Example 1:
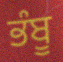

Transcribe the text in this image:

ਭੰਬੂ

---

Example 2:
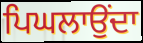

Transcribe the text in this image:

ਪਿਘਲਾਉਂਦਾ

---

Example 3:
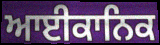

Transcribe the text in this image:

ਆਈਕਾਨਿਕ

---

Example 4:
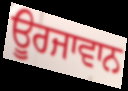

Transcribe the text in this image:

ਊਰਜਾਵਾਨ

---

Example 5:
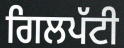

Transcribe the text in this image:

ਗਿਲਪੱਟੀ